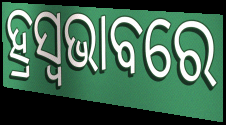
ହ୍ରସ୍ୱଭାବରେ